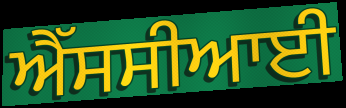
ਐੱਸਸੀਆਈ